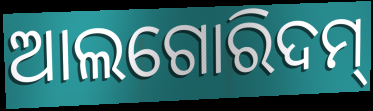
ଆଲଗୋରିଦମ୍